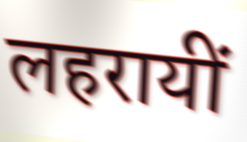
लहरायीं